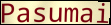
Pasumai